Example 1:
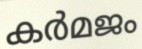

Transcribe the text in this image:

കർമജം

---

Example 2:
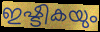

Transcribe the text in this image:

ഇഷ്ടികയും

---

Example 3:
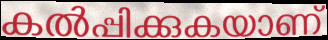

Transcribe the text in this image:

കൽപ്പിക്കുകയാണ്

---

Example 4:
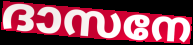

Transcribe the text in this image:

ദാസനേ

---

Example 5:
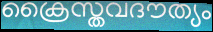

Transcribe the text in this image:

ക്രൈസ്തവദൗത്യം